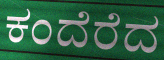
ಕಂದೆರೆದ